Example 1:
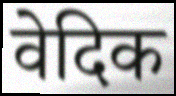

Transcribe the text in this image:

वेदिक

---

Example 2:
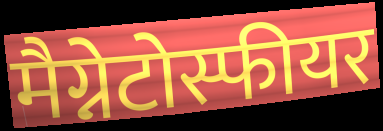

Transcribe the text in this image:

मैग्नेटोस्फीयर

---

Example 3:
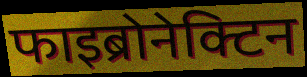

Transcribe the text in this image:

फाइब्रोनेक्टिन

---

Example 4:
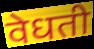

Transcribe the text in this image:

वेधती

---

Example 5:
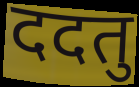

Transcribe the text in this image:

ददतु